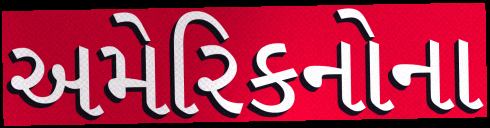
અમેરિકનોના